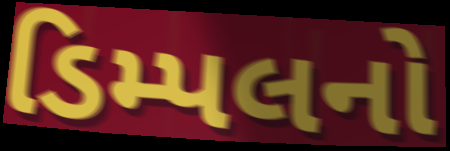
ડિમ્પલનો